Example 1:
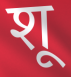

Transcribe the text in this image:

शू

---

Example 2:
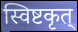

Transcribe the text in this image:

स्विष्टकृत्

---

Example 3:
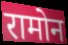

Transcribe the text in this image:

रामोन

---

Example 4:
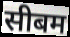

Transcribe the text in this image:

सीबम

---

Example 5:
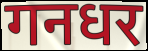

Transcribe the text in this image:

गनधर